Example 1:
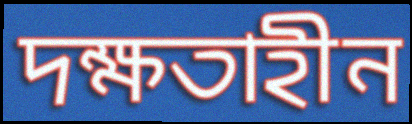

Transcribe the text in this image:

দক্ষতাহীন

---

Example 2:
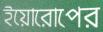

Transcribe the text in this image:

ইয়োরোপের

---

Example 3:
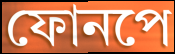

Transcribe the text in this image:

ফোনপে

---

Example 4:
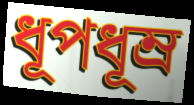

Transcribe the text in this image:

ধূপধূম্র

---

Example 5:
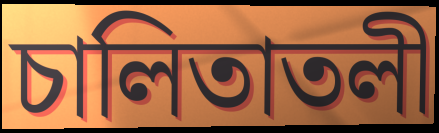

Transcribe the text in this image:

চালিতাতলী